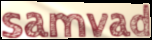
samvad